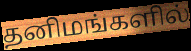
தனிமங்களில்